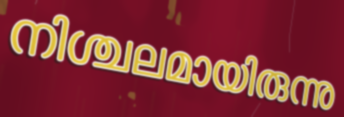
നിശ്ചലമായിരുന്നു